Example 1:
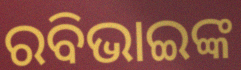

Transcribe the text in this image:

ରବିଭାଇଙ୍କ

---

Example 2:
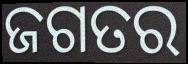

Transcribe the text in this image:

ଜଗତର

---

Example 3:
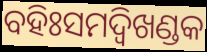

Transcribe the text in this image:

ବହିଃସମଦ୍ୱିଖଣ୍ଡକ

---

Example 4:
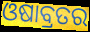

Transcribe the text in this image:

ଓଷାବ୍ରତର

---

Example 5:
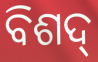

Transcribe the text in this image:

ବିଶଦ୍